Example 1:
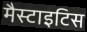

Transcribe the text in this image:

मैस्टाइटिस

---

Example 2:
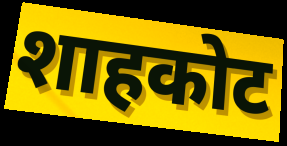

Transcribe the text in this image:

शाहकोट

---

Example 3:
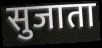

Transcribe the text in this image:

सुजाता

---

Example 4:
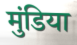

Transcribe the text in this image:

मुंडिया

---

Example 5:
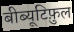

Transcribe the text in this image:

बीब्यूटिफ़ुल